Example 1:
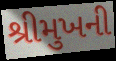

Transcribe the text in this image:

શ્રીમુખની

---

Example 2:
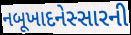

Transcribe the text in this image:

નબૂખાદનેસ્સારની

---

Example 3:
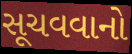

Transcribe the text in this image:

સૂચવવાનો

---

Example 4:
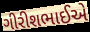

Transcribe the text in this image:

ગીરીશભાઈએ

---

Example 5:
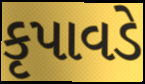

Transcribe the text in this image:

કૃપાવડે